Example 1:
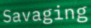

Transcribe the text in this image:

Savaging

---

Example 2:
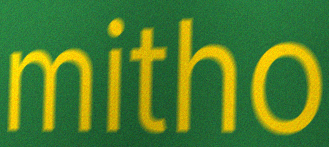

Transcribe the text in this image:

mitho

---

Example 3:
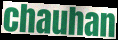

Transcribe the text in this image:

chauhan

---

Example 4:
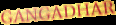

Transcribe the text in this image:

GANGADHAR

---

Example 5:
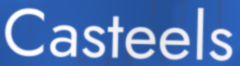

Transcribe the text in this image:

Casteels